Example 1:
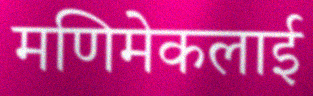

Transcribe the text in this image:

मणिमेकलाई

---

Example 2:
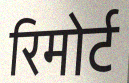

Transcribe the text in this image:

रिमोर्ट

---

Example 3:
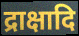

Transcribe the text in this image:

द्राक्षादि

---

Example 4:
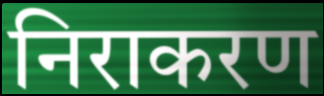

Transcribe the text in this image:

निराकरण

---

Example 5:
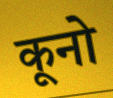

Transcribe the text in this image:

कूनो